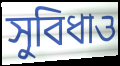
সুবিধাও